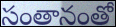
సంతానంతో